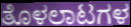
ತೊಳಲಾಟಗಳ